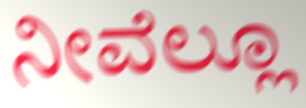
ನೀವೆಲ್ಲೂ